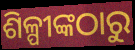
ଶିଳ୍ପୀଙ୍କଠାରୁ